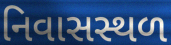
નિવાસસ્થળ